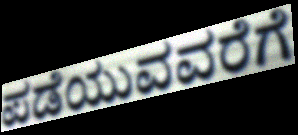
ಪಡೆಯುವವರೆಗೆ